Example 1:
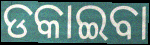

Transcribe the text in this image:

ଡକାଇବା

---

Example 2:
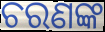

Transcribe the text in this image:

ଚରଣଙ୍କ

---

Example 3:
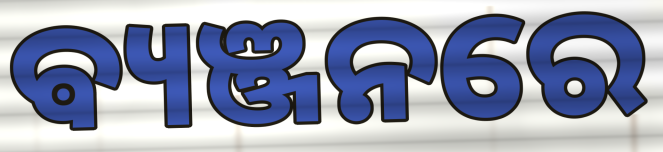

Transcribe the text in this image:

ଵ୍ୟଞ୍ଜନରେ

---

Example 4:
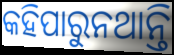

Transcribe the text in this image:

କହିପାରୁନଥାନ୍ତି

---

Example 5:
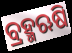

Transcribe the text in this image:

ବ୍ରହ୍ମଋଷି